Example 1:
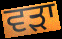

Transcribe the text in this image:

ਵੜਾ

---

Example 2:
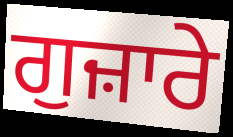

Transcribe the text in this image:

ਗੁਜ਼ਾਰੇ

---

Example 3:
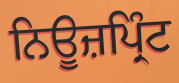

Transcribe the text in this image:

ਨਿਊਜ਼ਪ੍ਰਿੰਟ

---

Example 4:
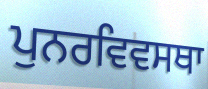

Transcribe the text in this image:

ਪੁਨਰਵਿਵਸਥਾ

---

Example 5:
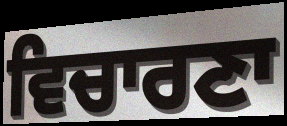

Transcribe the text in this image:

ਵਿਚਾਰਣਾ